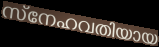
സ്‌നേഹവതിയായ